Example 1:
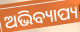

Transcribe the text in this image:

ଅଭିବ୍ୟାପ୍ୟ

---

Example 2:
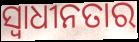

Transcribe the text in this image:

ସ୍ବାଧୀନତାର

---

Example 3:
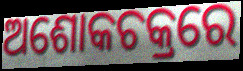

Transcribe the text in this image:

ଅଶୋକଚକ୍ରରେ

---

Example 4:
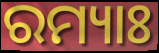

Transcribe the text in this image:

ରମ୍ୟାଃ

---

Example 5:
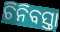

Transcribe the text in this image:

ଚିନିବସ୍ତା